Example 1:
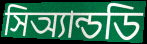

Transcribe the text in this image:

সিঅ্যান্ডডি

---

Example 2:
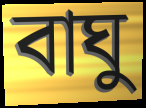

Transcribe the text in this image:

বাঘু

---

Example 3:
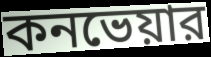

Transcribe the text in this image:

কনভেয়ার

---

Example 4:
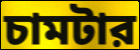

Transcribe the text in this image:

চামটার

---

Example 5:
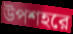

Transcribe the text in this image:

উপশহরে